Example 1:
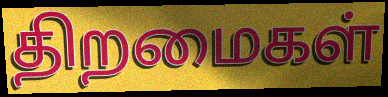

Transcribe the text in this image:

திறமைகள்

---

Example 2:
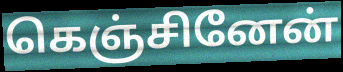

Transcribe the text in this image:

கெஞ்சினேன்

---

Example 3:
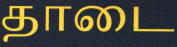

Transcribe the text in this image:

தாடை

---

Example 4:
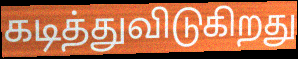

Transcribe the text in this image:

கடித்துவிடுகிறது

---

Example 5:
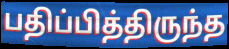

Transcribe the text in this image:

பதிப்பித்திருந்த